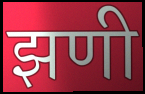
झणी